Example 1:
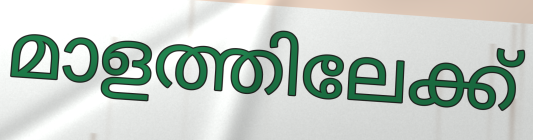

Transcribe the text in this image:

മാളത്തിലേക്ക്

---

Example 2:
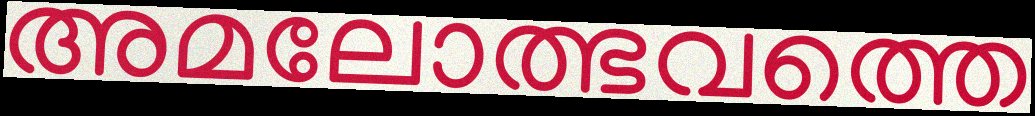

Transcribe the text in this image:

അമലോത്ഭവത്തെ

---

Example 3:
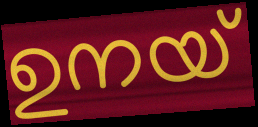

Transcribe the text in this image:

ഉനയ്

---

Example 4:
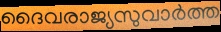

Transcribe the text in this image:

ദൈവരാജ്യസുവാർത്ത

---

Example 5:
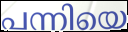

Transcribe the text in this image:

പന്നിയെ